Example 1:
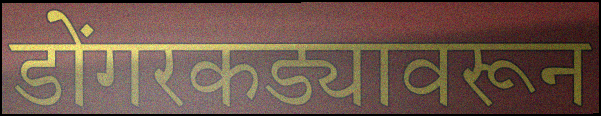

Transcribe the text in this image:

डोंगरकड्यावरून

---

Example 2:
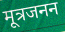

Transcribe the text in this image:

मूत्रजनन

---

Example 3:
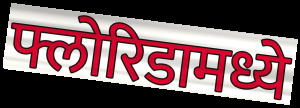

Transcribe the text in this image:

फ्लोरिडामध्ये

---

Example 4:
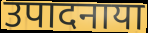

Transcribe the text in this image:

उपादनाया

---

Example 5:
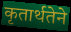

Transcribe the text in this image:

कृतार्थतेने